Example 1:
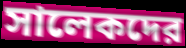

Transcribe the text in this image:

সালেকদের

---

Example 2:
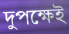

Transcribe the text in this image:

দুপক্ষেই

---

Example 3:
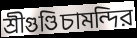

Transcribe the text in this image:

শ্রীগুণ্ডিচামন্দির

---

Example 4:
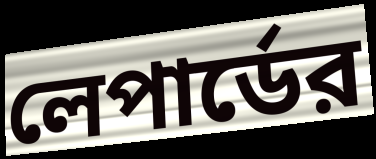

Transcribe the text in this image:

লেপার্ডের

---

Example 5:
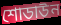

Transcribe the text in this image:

শোডাউন